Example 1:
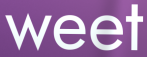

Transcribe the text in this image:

weet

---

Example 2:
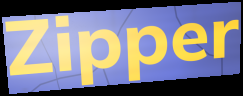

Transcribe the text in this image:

Zipper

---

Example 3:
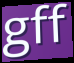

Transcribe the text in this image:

gff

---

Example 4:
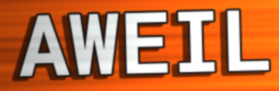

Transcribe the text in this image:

AWEIL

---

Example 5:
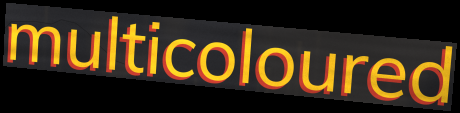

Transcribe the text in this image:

multicoloured